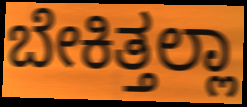
ಬೇಕಿತ್ತಲ್ಲಾ